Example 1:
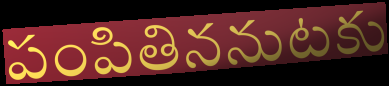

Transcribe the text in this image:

పంపితిననుటకు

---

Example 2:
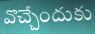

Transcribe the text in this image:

వొచ్చేందుకు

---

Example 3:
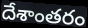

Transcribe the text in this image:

దేశాంతరం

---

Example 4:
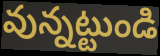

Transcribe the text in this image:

వున్నట్టుండి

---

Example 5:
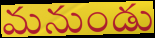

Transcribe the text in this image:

మనుండు